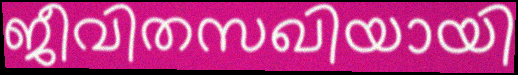
ജീവിതസഖിയായി